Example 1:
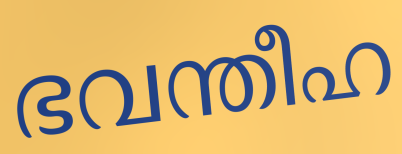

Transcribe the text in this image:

ഭവന്തീഹ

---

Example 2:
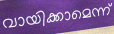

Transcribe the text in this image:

വായിക്കാമെന്ന്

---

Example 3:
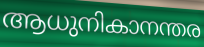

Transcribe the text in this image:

ആധുനികാനന്തര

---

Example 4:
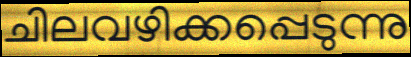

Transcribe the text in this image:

ചിലവഴിക്കപ്പെടുന്നു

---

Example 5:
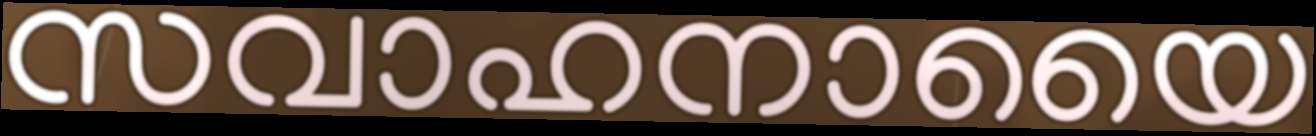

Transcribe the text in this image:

സവാഹനായൈ